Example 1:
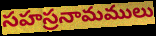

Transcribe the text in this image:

సహస్రనామములు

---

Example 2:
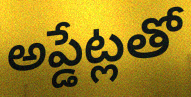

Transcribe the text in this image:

అప్డేట్లతో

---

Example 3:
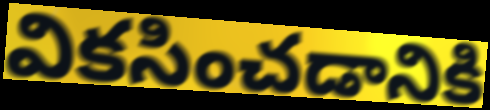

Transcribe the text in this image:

వికసించడానికి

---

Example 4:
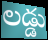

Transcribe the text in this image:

లడ్డు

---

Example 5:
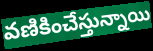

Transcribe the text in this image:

వణికించేస్తున్నాయి